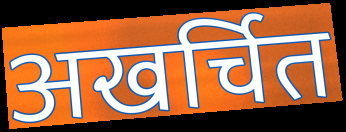
अखर्चित